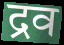
द्रव